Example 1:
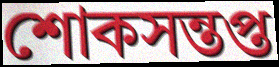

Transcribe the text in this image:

শোকসন্তপ্ত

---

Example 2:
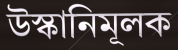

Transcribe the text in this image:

উস্কানিমূলক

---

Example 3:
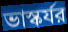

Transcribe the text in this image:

ভাস্কর্যর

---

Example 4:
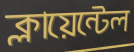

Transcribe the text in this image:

ক্লায়েন্টেল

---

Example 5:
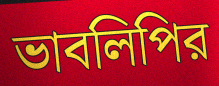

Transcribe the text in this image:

ভাবলিপির